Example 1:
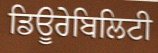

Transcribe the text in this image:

ਡਿਊਰੇਬਿਲਿਟੀ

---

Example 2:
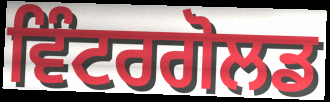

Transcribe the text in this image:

ਵਿੰਟਰਗੋਲਡ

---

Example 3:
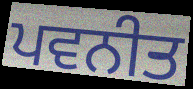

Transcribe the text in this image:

ਪਵਨੀਤ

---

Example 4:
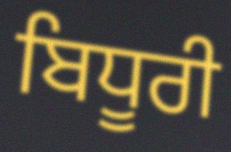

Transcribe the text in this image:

ਬਿਧੂਰੀ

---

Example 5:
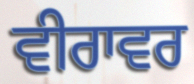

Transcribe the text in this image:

ਵੀਰਾਵਰ